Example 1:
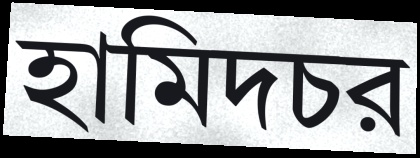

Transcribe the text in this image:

হামিদচর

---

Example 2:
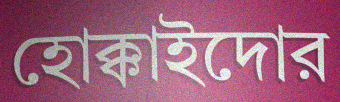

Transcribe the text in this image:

হোক্কাইদোর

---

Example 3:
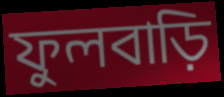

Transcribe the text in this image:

ফুলবাড়ি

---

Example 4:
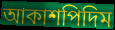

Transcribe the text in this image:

আকাশপিদিম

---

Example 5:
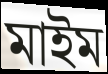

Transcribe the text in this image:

মাইম